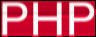
PHP